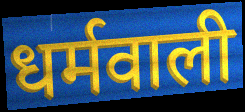
धर्मवाली